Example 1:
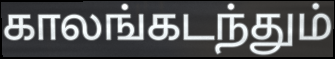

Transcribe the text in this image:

காலங்கடந்தும்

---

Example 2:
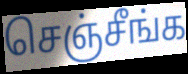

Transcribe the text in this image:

செஞ்சீங்க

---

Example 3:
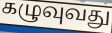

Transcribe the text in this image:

கழுவுவது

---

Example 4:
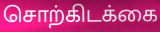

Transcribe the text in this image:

சொற்கிடக்கை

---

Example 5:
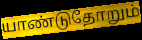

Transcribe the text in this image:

யாண்டுதோறும்